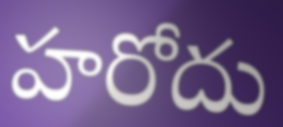
హరోదు